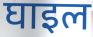
घाइल